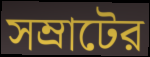
সম্রাটের